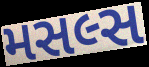
મસલ્સ